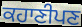
ਕਹਾਣੀਪਣ